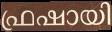
ഫ്രഷായി